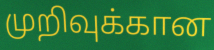
முறிவுக்கான